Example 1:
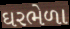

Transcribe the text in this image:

ઘરભેળા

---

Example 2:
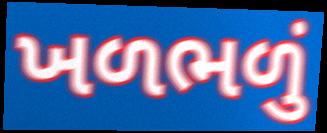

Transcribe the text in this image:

ખળભળું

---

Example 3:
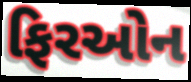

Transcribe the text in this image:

ફિરઓન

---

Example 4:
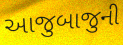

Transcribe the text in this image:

આજુબાજુની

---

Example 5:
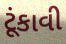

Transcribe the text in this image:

ટૂંકાવી